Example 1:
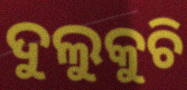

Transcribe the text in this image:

ଦୁଲୁକୁଚି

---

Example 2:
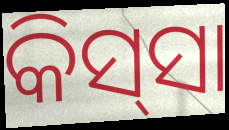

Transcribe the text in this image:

କିସ୍‍ସା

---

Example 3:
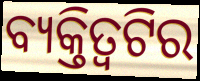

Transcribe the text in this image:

ବ୍ୟକ୍ତିତ୍ୱଟିର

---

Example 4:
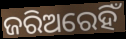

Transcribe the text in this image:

ଜରିଅରେହିଁ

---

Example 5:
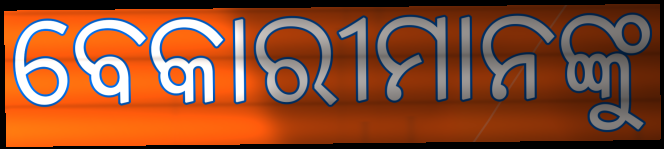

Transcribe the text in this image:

ବେକାରୀମାନଙ୍କୁ